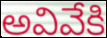
అవివేకి